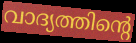
വാദ്യത്തിന്റെ